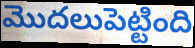
మొదలుపెట్టింది